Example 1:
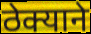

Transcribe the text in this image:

ठेक्याने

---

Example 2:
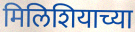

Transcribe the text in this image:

मिलिशियाच्या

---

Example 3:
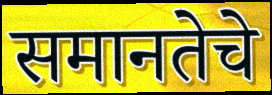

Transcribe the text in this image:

समानतेचे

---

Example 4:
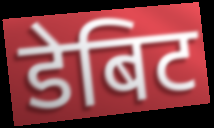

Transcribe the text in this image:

डेबिट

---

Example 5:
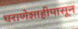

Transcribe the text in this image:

घराणेशाहीपासून